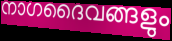
നാഗദൈവങ്ങളും